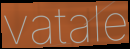
vatale